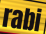
rabi